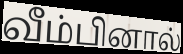
வீம்பினால்